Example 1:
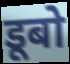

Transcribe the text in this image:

डूबो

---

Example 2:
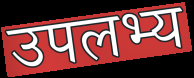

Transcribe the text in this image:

उपलभ्य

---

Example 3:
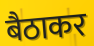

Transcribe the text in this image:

बैठाकर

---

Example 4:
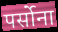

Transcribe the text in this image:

पर्सोना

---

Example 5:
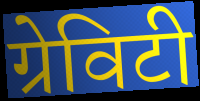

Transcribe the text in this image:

ग्रेविटी